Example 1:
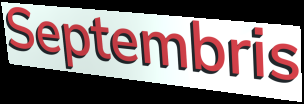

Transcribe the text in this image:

Septembris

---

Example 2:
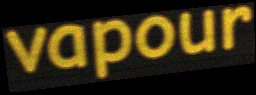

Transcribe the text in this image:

vapour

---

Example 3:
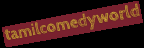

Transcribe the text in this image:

tamilcomedyworld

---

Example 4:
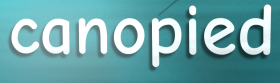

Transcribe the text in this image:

canopied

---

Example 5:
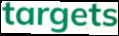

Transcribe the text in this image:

targets